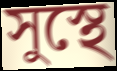
সুস্থে